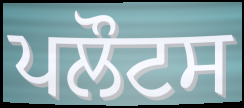
ਪਲੌਟਸ